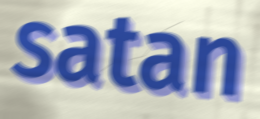
satan